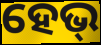
ହେଭ୍